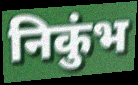
निकुंभ